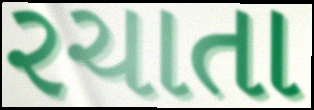
રચાતા